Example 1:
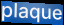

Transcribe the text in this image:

plaque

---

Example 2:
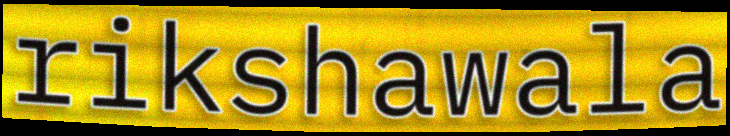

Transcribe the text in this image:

rikshawala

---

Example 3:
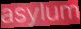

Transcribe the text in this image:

asylum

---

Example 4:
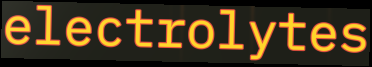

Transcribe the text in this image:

electrolytes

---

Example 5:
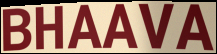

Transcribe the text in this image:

BHAAVA